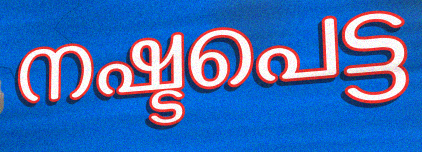
നഷ്ടപെട്ട